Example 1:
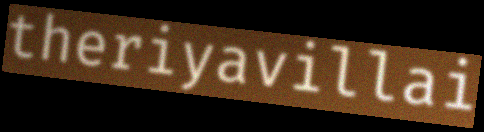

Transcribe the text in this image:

theriyavillai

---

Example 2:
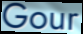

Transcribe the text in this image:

Gour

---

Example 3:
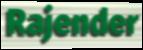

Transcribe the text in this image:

Rajender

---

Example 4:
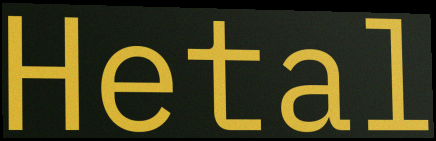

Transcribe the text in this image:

Hetal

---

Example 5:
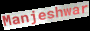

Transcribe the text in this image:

Manjeshwar